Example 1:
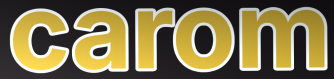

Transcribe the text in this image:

carom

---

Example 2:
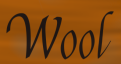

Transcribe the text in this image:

Wool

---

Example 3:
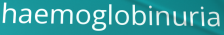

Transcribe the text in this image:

haemoglobinuria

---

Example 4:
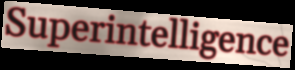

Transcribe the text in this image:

Superintelligence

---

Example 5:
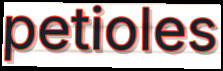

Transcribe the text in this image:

petioles